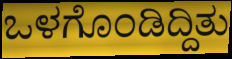
ಒಳಗೊಂಡಿದ್ದಿತು